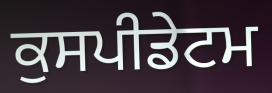
ਕੁਸਪੀਡੇਟਮ